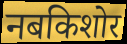
नबकिशोर